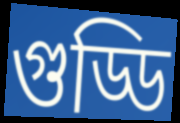
গুড্ডি